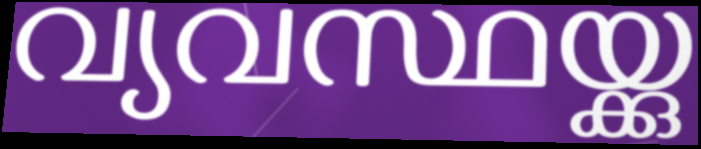
വ്യവസ്ഥയ്ക്കു